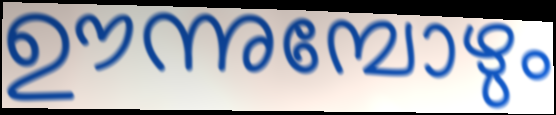
ഊന്നുമ്പോഴും